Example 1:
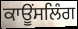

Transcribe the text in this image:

ਕਾਊਂਸਲਿੰਗ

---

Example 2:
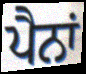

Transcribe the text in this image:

ਪੈਨਾਂ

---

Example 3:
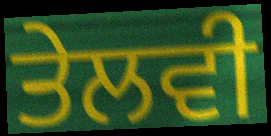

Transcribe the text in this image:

ਤੇਲਵੀ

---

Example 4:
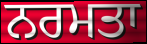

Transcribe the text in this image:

ਨਰਮਤਾ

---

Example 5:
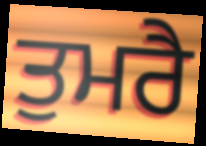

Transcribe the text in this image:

ਤੁਮਰੈ